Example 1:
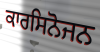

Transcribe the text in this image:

ਕਾਰਸਿਨੋਜਨ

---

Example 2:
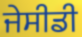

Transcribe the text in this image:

ਜੇਸੀਡੀ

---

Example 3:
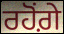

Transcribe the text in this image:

ਰਹੋਂਗ਼ੇ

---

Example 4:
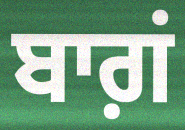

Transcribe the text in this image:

ਬਾਗ਼ਂ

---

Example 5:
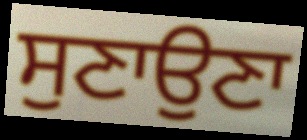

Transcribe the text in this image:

ਸੁਣਾਉਣਾ